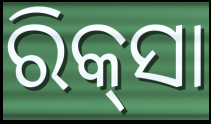
ରିକ୍‌ସା